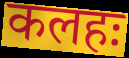
कलहः